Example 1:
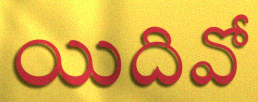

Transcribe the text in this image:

యిదివో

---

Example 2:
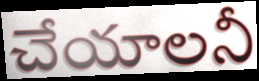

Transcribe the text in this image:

చేయాలనీ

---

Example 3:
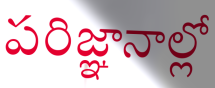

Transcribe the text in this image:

పరిజ్ఞానాల్లో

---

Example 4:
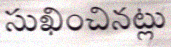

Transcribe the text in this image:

సుఖించినట్లు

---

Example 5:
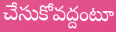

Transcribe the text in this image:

చేసుకోవద్దంటూ